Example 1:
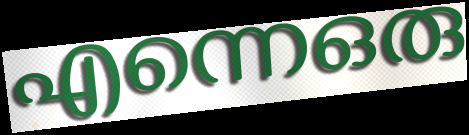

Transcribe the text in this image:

എന്നെഒരു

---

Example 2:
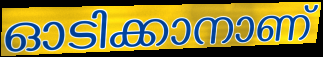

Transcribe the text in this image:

ഓടിക്കാനാണ്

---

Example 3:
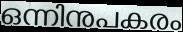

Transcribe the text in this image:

ഒന്നിനുപകരം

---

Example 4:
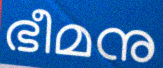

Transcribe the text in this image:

ഭീമനു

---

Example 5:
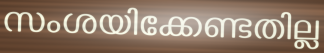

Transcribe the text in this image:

സംശയിക്കേണ്ടതില്ല